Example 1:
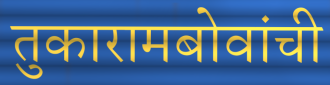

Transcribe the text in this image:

तुकारामबोवांची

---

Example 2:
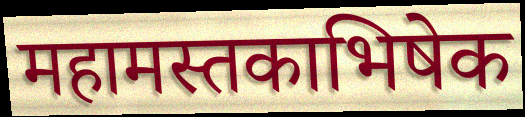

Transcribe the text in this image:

महामस्तकाभिषेक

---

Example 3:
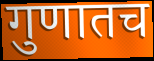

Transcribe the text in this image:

गुणातच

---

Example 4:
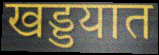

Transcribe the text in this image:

खड्डयात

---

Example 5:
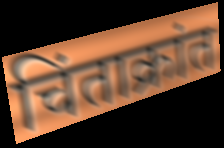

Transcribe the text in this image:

चिंताक्रांत